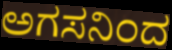
ಅಗಸನಿಂದ